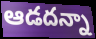
ఆడదన్నా